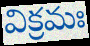
విక్రమః